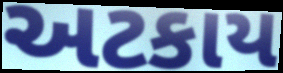
અટકાય